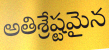
అతిశ్రేష్టమైన